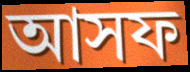
আসফ